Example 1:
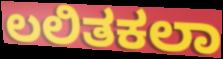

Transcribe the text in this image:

ಲಲಿತಕಲಾ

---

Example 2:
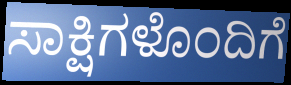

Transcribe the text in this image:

ಸಾಕ್ಷಿಗಳೊಂದಿಗೆ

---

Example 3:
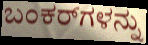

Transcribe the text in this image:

ಬಂಕರ್‌ಗಳನ್ನು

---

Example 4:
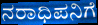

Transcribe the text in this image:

ನರಾಧಿಪನಿಗೆ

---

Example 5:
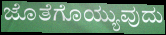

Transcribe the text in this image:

ಜೊತೆಗೊಯ್ಯುವುದು